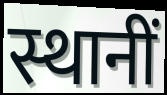
स्थानीं